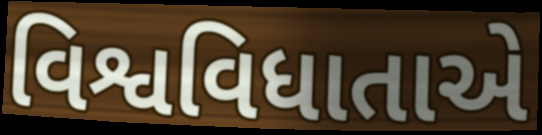
વિશ્વવિધાતાએ